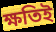
ক্ষতিই